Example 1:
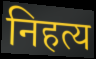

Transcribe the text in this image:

निहत्य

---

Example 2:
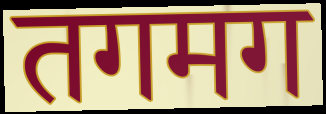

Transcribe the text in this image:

तगमग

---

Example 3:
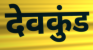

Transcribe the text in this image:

देवकुंड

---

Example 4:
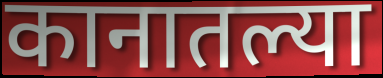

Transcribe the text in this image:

कानातल्या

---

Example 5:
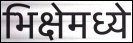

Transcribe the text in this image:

भिक्षेमध्ये